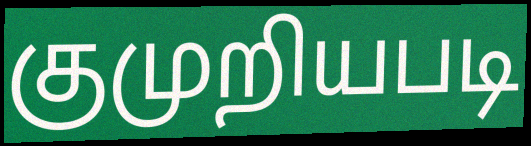
குமுறியபடி